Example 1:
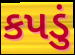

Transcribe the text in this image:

કપડું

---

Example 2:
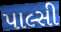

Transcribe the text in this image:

પાલ્સી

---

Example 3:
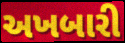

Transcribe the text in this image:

અખબારી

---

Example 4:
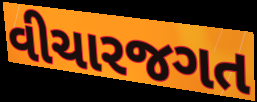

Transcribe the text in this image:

વીચારજગત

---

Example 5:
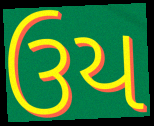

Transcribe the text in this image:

ઉય